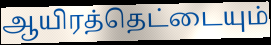
ஆயிரத்தெட்டையும்